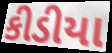
કીડીયા